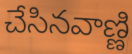
చేసినవాణ్ణి